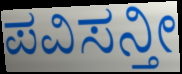
ಪವಿಸನ್ತೀ